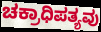
ಚಕ್ರಾಧಿಪತ್ಯವು